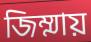
জিম্মায়